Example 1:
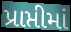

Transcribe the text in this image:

પ્રાપ્તીમાં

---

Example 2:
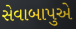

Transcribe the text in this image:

સેવાબાપુએ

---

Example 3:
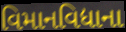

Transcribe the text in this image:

વિમાનવિદ્યાના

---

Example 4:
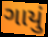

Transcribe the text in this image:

ગાયું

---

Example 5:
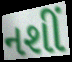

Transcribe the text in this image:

નશીં